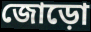
জোড়ো